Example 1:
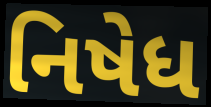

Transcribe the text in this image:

નિષેધ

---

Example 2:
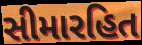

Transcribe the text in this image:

સીમારહિત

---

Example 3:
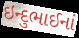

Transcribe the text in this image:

ઇન્દુભાઈનાં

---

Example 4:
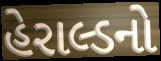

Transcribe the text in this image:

હેરાલ્ડનો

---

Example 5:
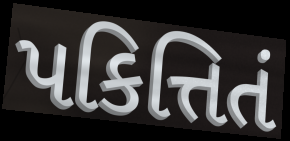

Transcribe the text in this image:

પકિત્તિતં